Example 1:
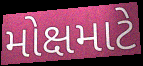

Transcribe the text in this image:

મોક્ષમાટે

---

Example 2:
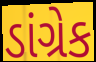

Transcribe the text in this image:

ડાંગ્રેક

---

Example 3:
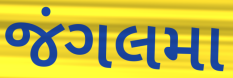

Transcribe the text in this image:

જંગલમા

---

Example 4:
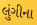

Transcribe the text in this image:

લુંગીના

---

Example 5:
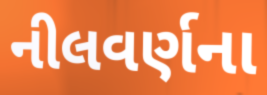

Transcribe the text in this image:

નીલવર્ણના